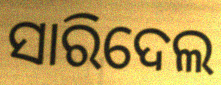
ସାରିଦେଲ